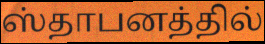
ஸ்தாபனத்தில்